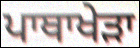
ਪਾਥਾਖੇੜਾ